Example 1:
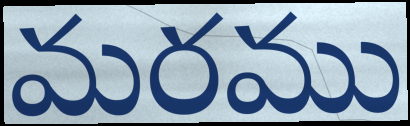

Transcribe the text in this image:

మరము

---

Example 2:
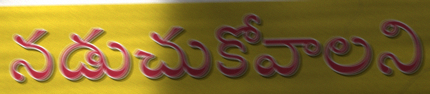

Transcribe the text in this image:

నడుచుకోవాలని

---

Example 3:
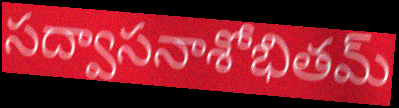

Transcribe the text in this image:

సద్వాసనాశోభితమ్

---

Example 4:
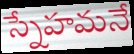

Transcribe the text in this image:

స్నేహమనే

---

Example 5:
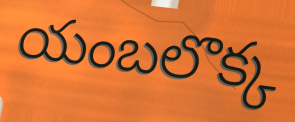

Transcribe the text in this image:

యంబలొక్క